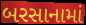
બરસાનામાં